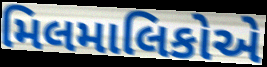
મિલમાલિકોએ